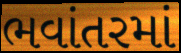
ભવાંતરમાં